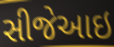
સીજેઆઇ